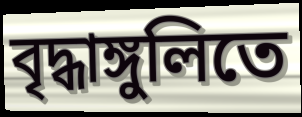
বৃদ্ধাঙ্গুলিতে